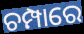
ଚମ୍ପାରେ